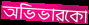
অভিভাৱকো